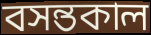
বসন্তকাল